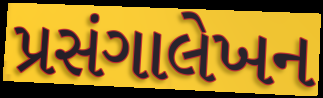
પ્રસંગાલેખન